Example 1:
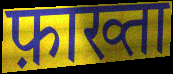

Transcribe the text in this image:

फ़ाख्ता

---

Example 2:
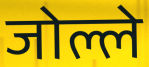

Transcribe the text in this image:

जोल्ले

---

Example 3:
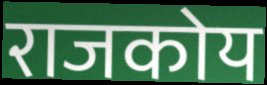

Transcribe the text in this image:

राजकोय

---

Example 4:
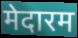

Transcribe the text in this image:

मेदारम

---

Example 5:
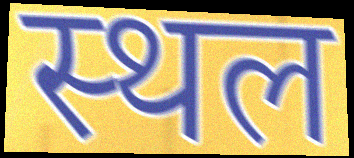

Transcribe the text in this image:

स्थल